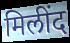
मिलींद